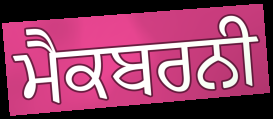
ਮੈਕਬਰਨੀ